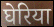
घेरिया